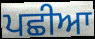
ਪਛੀਆ